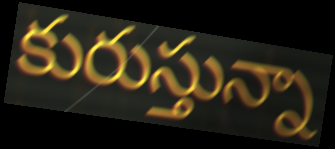
కురుస్తున్నా